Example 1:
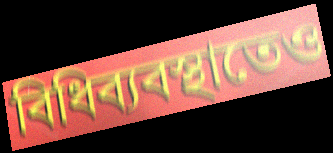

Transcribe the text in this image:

বিধিব্যবস্থাতেও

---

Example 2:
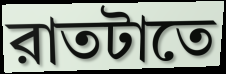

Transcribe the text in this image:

রাতটাতে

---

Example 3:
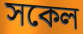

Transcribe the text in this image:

সকেল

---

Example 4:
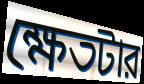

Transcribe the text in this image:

ক্ষেতটার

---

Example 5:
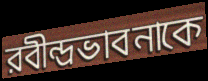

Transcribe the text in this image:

রবীন্দ্রভাবনাকে